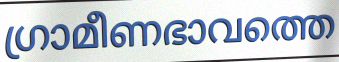
ഗ്രാമീണഭാവത്തെ